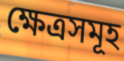
ক্ষেত্ৰসমূহ